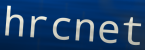
hrcnet